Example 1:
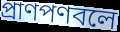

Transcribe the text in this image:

প্রাণপণবলে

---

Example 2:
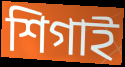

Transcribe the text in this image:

শিগাই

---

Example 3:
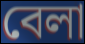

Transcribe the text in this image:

বেলা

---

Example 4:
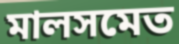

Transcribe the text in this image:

মালসমেত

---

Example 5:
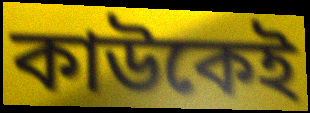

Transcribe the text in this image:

কাউকেই